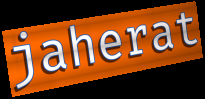
jaherat